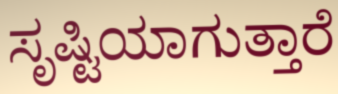
ಸೃಷ್ಟಿಯಾಗುತ್ತಾರೆ